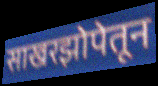
साखरझोपेतून